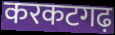
करकटगढ़